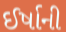
ઈર્ષાની